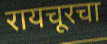
रायचूरचा